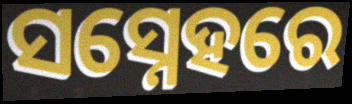
ସସ୍ନେହରେ